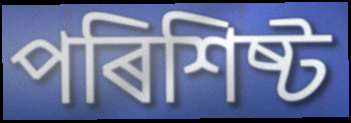
পৰিশিষ্ট